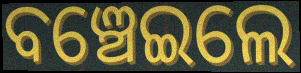
ବଞ୍ଚେଇଲେ